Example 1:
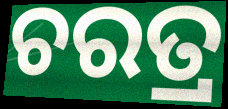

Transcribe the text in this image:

ଚରତ୍ର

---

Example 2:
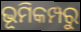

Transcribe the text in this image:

ଭୂମିକମ୍ପରୁ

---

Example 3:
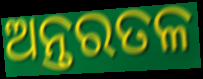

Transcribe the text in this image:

ଅନ୍ତରତଳ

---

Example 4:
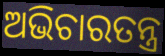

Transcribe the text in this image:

ଅଭିଚାରତନ୍ତ୍ର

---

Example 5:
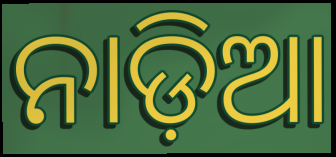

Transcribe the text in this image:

ନାଡ଼ିଆ